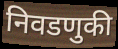
निवडणुकी